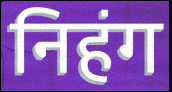
निहंग